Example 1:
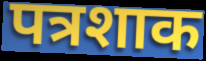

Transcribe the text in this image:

पत्रशाक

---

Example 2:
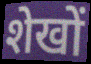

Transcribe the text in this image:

शेखों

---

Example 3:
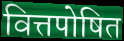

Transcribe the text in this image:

वित्तपोषित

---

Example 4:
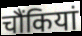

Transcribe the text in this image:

चौंकियां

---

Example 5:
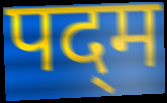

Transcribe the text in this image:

पद्‌म